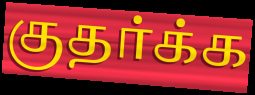
குதர்க்க